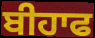
ਬੀਹਾਫ